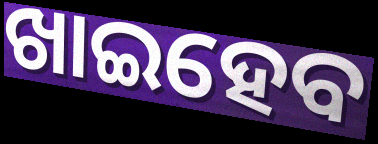
ଖାଇହେବ